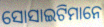
ସୋସାଇଟିମାନେ